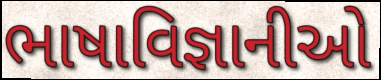
ભાષાવિજ્ઞાનીઓ